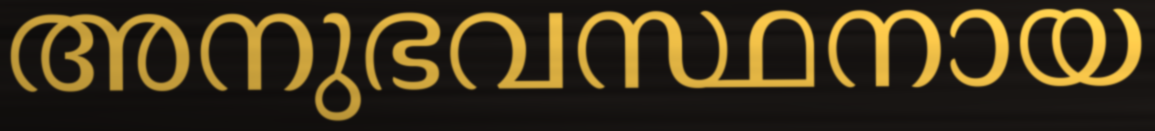
അനുഭവസ്ഥനായ